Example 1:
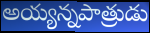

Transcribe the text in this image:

అయ్యన్నపాత్రుడు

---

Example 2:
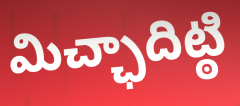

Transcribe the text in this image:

మిచ్ఛాదిట్ఠి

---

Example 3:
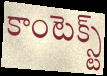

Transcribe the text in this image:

కాంటెక్స్ట్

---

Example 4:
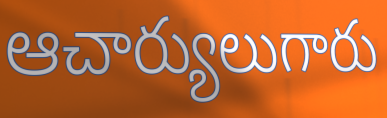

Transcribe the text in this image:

ఆచార్యులుగారు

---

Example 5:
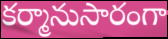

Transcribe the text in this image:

కర్మానుసారంగా